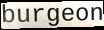
burgeon